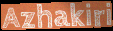
Azhakiri